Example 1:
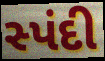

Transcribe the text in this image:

સ્પંદી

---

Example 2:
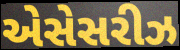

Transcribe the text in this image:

એસેસરીઝ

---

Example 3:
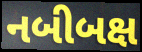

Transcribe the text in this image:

નબીબક્ષ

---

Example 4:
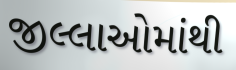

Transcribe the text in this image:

જીલ્લાઓમાંથી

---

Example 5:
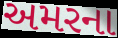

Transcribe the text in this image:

અમરના